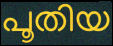
പൂതിയ